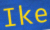
Ike